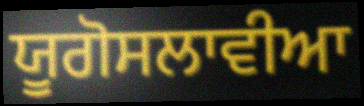
ਯੂਗੋਸਲਾਵੀਆ